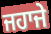
ਜਹਾਜੇ